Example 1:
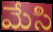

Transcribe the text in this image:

మేసి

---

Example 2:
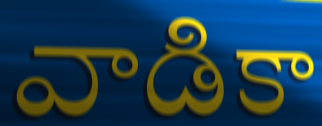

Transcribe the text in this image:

వాడికా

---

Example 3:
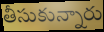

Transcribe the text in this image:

తీసుకున్నారు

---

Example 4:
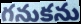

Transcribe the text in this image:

గనుకను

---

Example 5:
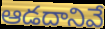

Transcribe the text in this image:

ఆడదానివే